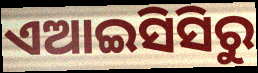
ଏଆଇସିସିରୁ